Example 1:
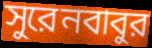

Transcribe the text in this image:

সুরেনবাবুর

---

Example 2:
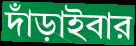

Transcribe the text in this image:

দাঁড়াইবার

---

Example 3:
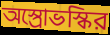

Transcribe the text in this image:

অস্ত্রোভস্কির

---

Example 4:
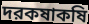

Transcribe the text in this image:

দরকষাকষি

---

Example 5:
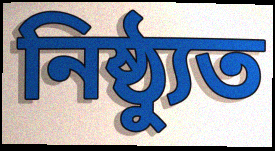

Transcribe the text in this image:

নিষ্ঠ্যুত